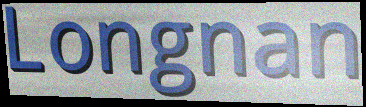
Longnan